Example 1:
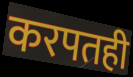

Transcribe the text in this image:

करपतही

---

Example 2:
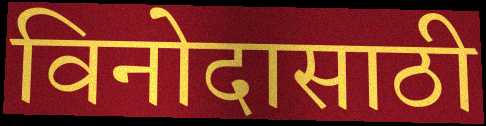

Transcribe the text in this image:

विनोदासाठी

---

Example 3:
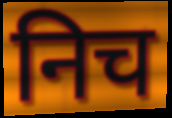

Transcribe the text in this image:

निच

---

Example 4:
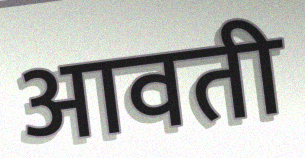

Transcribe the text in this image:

आवती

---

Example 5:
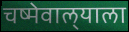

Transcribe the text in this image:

चष्मेवाल्याला